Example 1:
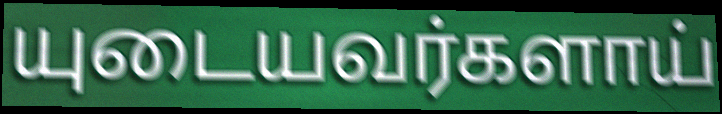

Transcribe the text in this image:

யுடையவர்களாய்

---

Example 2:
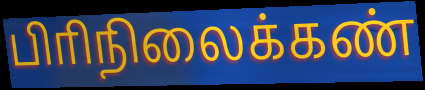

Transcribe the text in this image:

பிரிநிலைக்கண்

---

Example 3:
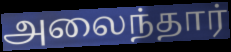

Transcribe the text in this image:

அலைந்தார்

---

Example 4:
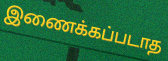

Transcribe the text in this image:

இணைக்கப்படாத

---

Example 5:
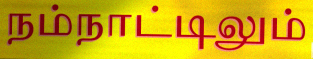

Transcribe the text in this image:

நம்நாட்டிலும்